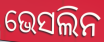
ଭେସଲିନ